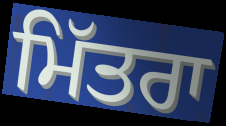
ਮਿੱਤਰਾ